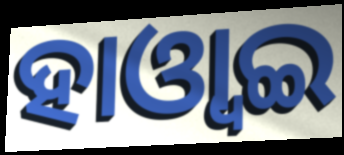
ହାଓ୍ୱାଇ